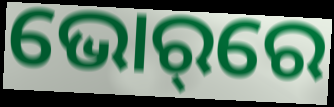
ଭୋର୍‌ରେ